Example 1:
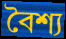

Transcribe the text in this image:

বৈশ্য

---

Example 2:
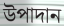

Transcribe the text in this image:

উপাদান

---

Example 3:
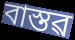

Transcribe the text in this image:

বাস্তৱ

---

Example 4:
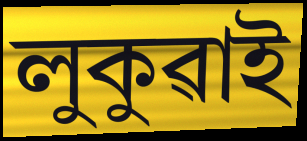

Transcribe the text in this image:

লুকুৱাই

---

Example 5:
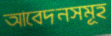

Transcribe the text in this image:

আবেদনসমূহ